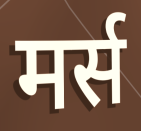
मर्स